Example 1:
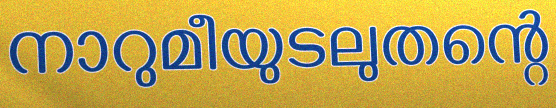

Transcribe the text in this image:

നാറുമീയുടലുതന്റെ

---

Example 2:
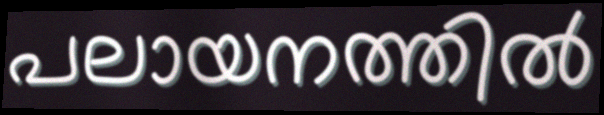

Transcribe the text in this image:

പലായനത്തിൽ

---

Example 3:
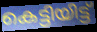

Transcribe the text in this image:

കെട്ടിയിട്ട്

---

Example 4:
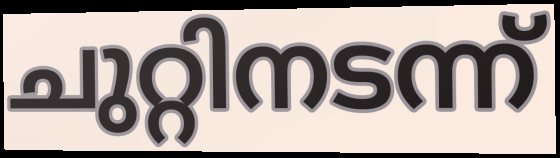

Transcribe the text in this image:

ചുറ്റിനടന്ന്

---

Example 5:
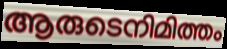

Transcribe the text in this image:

ആരുടെനിമിത്തം